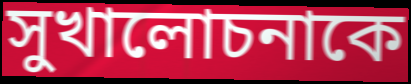
সুখালোচনাকে